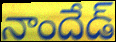
నాందేడ్